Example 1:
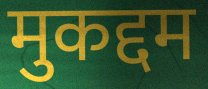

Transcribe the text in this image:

मुकद्दम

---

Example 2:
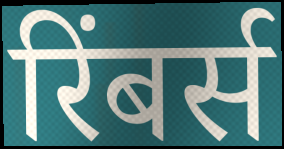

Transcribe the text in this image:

रिंबर्स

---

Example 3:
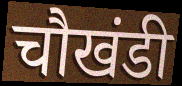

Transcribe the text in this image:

चौखंडी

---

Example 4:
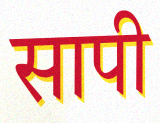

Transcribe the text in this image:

सापी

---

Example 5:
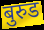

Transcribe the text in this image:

बुरुड